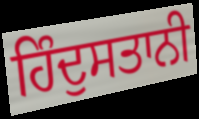
ਹਿੰਦੁਸਤਾਨੀ